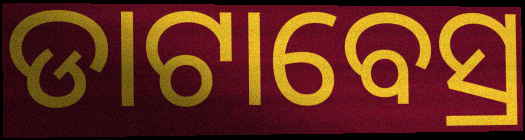
ଡାଟାବେସ୍ର